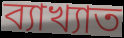
ব্যাখ্যাত